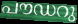
പൗഡറു